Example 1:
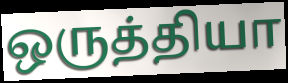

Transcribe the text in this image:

ஒருத்தியா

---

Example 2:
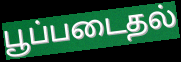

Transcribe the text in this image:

பூப்படைதல்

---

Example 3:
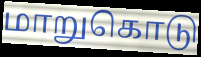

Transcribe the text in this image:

மாறுகொடு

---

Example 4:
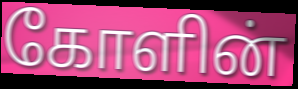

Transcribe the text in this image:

கோளின்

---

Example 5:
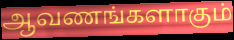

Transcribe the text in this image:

ஆவணங்களாகும்